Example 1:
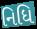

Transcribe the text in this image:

નિધિ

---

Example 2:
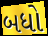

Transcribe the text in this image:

બધો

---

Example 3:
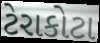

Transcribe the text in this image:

ટેરાકોટા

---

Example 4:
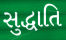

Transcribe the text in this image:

સુદ્ધાતિ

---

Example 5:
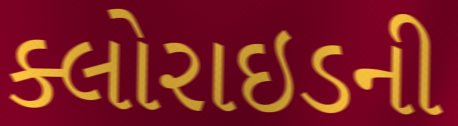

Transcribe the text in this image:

ક્લોરાઇડની